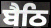
ਬੈਠਿ